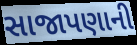
સાજાપણાની